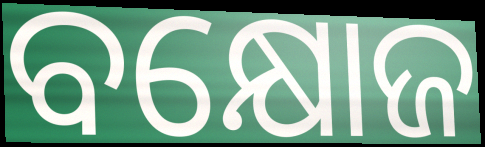
ବକ୍ଷୋଜ